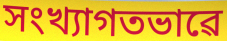
সংখ্যাগতভাৱে